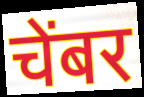
चेंबर